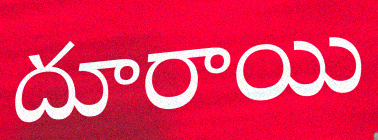
దూరాయి